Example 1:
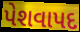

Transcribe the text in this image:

પેશવાપદ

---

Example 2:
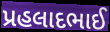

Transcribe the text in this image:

પ્રહલાદભાઈ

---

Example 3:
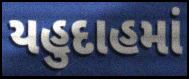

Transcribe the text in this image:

યહુદાહમાં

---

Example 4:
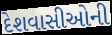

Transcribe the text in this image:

દેશવાસીઓની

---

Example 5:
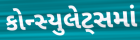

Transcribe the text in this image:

કોન્સ્યુલેટ્સમાં